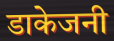
डाकेजनी